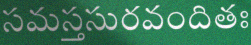
సమస్తసురవందితః